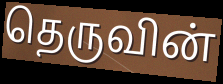
தெருவின்